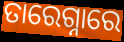
ତାରେଗ୍ନାରେ